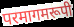
परमागमरूपी